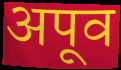
अपूव